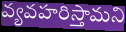
వ్యవహరిస్తామని